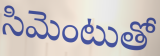
సిమెంటుతో